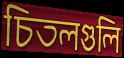
চিতলগুলি